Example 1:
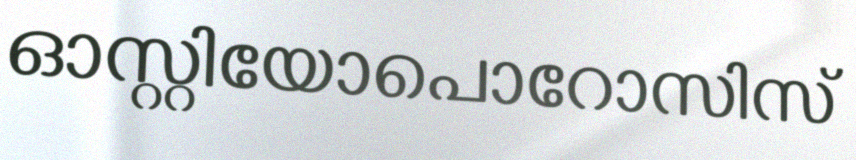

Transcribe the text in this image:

ഓസ്റ്റിയോപൊറോസിസ്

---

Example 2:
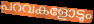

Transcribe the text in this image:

പറവകളോടും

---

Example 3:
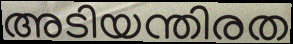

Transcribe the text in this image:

അടിയന്തിരത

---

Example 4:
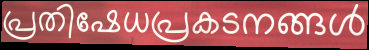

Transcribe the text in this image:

പ്രതിഷേധപ്രകടനങ്ങൾ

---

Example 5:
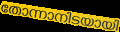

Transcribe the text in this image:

തോന്നാനിടയായി